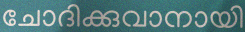
ചോദിക്കുവാനായി